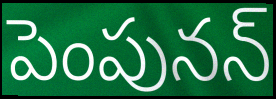
పెంపునన్